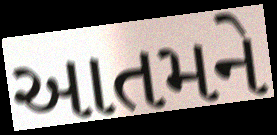
આતમને